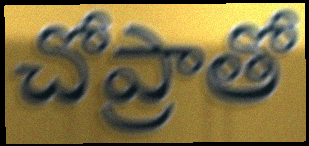
చోప్రాతో